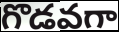
గొడవగా